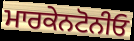
ਮਾਰਕੇਨਟੋਨੀਓ